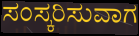
ಸಂಸ್ಕರಿಸುವಾಗ